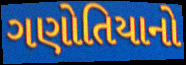
ગણોતિયાનો